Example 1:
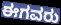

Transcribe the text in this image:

ಈಗವರು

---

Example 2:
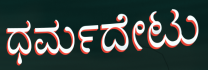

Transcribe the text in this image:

ಧರ್ಮದೇಟು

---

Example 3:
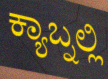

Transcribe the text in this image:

ಕ್ಯಾಬ್ನಲ್ಲಿ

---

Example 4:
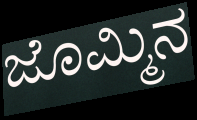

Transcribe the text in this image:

ಜೊಮ್ಮಿನ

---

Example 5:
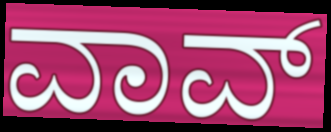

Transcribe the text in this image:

ವಾವ್